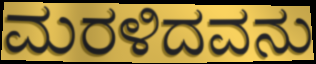
ಮರಳಿದವನು